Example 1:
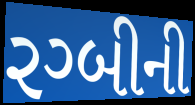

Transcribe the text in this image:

રગ્બીની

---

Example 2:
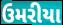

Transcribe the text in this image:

ઉમરીયા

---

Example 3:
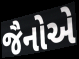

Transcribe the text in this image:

જૈનોએ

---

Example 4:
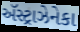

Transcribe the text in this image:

ઍસ્ટ્રાઝેનેકા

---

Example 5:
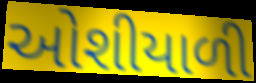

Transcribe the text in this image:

ઓશીયાળી